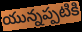
యున్నప్పటికి